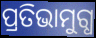
ପ୍ରତିଭାମୁଗ୍ଧ